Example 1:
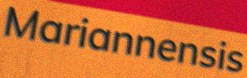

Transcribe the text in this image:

Mariannensis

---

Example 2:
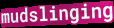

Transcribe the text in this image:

mudslinging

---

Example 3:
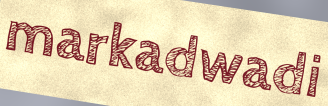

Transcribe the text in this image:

markadwadi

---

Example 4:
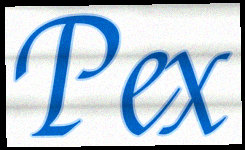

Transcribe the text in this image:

Pex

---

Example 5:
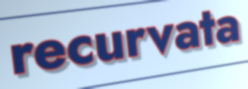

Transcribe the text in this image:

recurvata